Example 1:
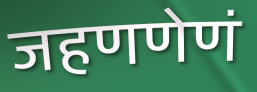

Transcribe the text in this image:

जहणणेणं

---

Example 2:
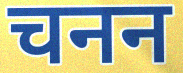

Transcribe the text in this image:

चनन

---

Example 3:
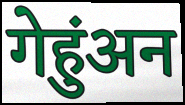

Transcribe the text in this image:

गेहुंअन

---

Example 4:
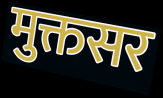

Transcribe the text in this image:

मुक्तसर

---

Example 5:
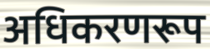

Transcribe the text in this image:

अधिकरणरूप